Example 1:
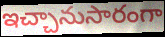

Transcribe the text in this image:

ఇచ్చానుసారంగా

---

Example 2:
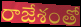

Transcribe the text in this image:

రాజేశంతో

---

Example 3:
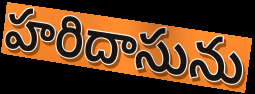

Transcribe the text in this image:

హరిదాసును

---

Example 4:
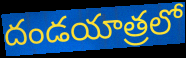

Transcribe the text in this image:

దండయాత్రలో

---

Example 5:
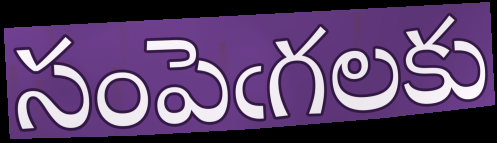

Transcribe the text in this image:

సంపెఁగలకు